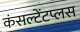
कंसल्टेंटप्लस